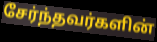
சேர்ந்தவர்களின்